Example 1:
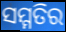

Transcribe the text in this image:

ସମ୍ମତିର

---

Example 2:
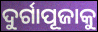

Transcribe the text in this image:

ଦୁର୍ଗାପୂଜାକୁ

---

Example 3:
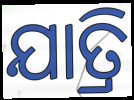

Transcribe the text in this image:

ଯାତ୍ରି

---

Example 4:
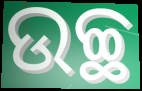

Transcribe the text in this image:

ଉଚ୍ଛ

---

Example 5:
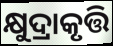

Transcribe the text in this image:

କ୍ଷୁଦ୍ରାକୃତ୍ତି